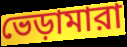
ভেড়ামারা